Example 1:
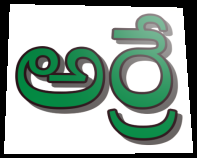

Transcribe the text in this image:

అర్రే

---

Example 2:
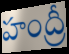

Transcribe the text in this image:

హంద్రీ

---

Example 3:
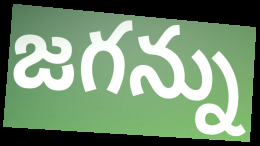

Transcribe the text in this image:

జగన్ను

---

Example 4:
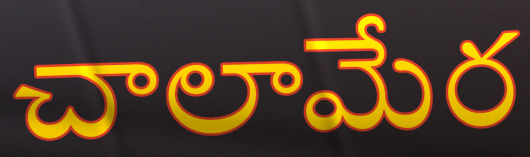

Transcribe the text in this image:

చాలామేర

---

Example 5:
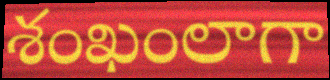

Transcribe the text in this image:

శంఖంలాగా